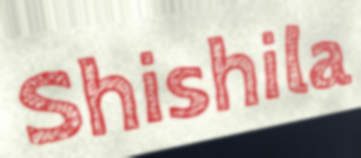
Shishila